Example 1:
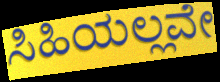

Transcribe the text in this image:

ಸಿಹಿಯಲ್ಲವೇ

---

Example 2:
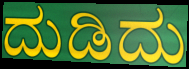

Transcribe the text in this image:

ದುಡಿದು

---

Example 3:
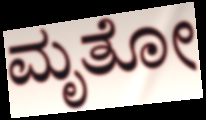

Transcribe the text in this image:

ಮೃತೋ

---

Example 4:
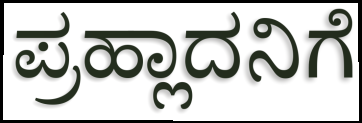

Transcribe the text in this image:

ಪ್ರಹ್ಲಾದನಿಗೆ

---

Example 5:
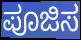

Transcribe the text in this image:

ಪೂಜಿಸ